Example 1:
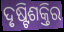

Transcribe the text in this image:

ଦୃଷ୍ଟିଶକ୍ତିର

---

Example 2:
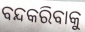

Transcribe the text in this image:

ବନ୍ଦକରିବାକୁ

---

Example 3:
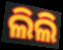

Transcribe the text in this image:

ଲିଲି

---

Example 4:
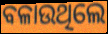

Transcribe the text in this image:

ବଳାଉଥିଲେ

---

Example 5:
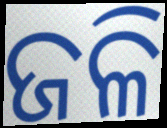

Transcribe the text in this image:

ଜଳି